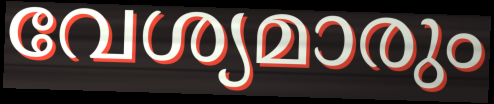
വേശ്യമാരും